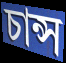
চান্স